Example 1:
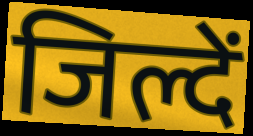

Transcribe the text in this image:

जिल्दें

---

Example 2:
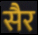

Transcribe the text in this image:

सैर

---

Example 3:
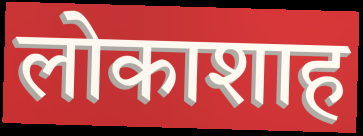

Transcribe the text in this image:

लोकाशाह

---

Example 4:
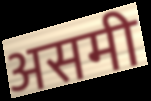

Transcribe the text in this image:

असमी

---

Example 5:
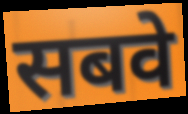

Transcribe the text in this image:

सबवे